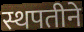
स्थपतीने